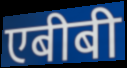
एबीबी